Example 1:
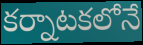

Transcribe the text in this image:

కర్నాటకలోనే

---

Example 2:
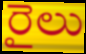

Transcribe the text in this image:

రైలు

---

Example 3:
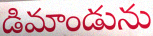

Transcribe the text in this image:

డిమాండును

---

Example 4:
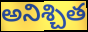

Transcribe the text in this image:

అనిశ్చిత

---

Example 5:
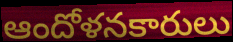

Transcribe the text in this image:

ఆందోళనకారులు